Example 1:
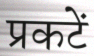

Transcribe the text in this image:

प्रकटें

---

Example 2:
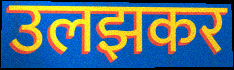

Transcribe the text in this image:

उलझकर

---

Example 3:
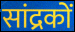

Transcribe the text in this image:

सांद्रकों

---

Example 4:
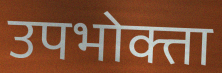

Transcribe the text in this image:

उपभोक्ता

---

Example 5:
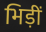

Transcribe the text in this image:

भिड़ीं